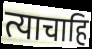
त्याचाहि